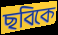
ছবিকে